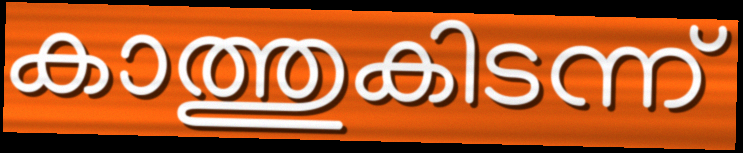
കാത്തുകിടന്ന്